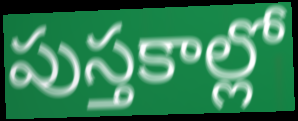
పుస్తకాల్లో